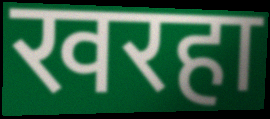
खरहा